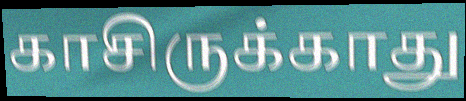
காசிருக்காது